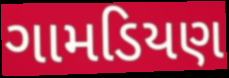
ગામડિયણ